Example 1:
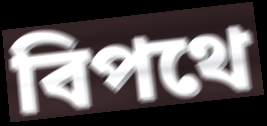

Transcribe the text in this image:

বিপথে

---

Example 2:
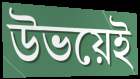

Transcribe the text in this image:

উভয়েই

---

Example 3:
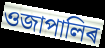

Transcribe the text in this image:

ওজাপালিৰ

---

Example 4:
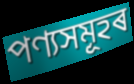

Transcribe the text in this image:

পণ্যসমূহৰ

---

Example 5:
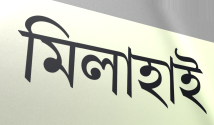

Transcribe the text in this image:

মিলাহাই